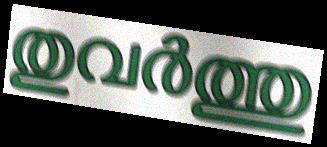
തുവർത്തു